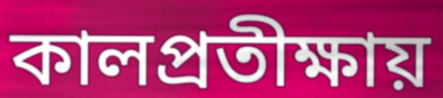
কালপ্রতীক্ষায়